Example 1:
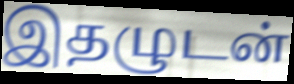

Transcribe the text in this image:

இதழுடன்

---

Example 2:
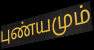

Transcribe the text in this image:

புண்யமும்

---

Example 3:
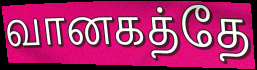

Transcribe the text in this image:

வானகத்தே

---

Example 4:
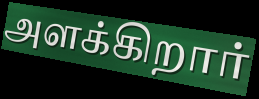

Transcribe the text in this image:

அளக்கிறார்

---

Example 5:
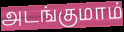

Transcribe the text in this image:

அடங்குமாம்